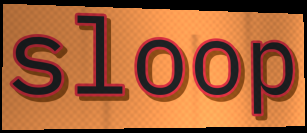
sloop